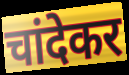
चांदेकर